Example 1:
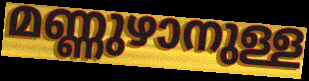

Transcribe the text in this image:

മണ്ണുഴാനുള്ള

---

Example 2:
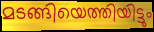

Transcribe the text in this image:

മടങ്ങിയെത്തിയിട്ടും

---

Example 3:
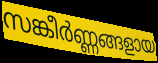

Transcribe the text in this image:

സങ്കീർണ്ണങ്ങളായ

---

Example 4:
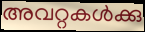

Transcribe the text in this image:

അവറ്റകൾക്കു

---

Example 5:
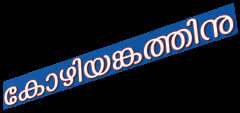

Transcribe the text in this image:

കോഴിയങ്കത്തിനു